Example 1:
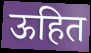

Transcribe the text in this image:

ऊहित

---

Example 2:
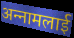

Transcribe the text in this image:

अन्‍नामलाई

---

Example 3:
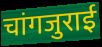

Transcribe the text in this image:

चांगजुराई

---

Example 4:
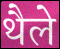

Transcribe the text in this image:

थैले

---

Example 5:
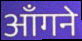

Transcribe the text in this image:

आँगने